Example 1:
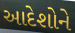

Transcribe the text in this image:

આદેશોને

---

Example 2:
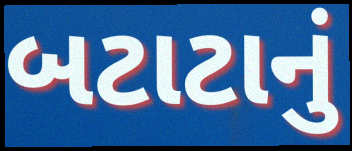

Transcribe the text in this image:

બટાટાનું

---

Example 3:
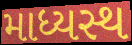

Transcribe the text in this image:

માધ્યસ્થ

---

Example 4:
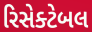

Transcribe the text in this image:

રિસેક્ટેબલ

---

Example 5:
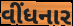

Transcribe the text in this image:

વીંધનાર